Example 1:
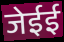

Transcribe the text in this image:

जेईई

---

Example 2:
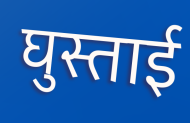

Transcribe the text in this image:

घुस्ताई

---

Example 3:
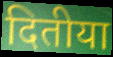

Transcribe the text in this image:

दितीया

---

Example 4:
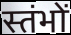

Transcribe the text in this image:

स्तंभों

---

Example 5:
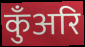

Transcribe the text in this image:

कुँअरि